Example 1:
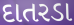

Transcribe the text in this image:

દાતરડા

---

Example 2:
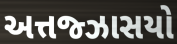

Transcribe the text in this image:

અત્તજ્ઝાસયો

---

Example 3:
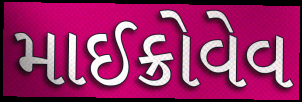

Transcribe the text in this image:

માઈક્રોવેવ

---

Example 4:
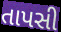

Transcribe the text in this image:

તાપસી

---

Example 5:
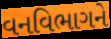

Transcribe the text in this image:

વનવિભાગને